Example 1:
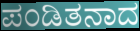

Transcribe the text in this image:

ಪಂಡಿತನಾದ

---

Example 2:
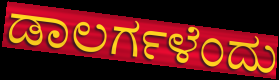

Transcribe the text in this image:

ಡಾಲರ್ಗಳೆಂದು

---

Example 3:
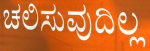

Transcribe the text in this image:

ಚಲಿಸುವುದಿಲ್ಲ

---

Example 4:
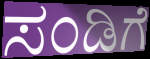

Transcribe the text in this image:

ಸಂಡಿಗೆ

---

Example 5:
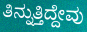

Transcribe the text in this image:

ತಿನ್ನುತ್ತಿದ್ದೇವು